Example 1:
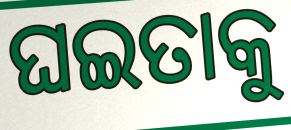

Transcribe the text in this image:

ଘଇତାକୁ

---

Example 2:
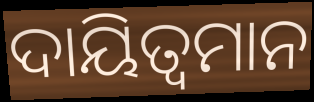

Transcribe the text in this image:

ଦାୟିତ୍ୱମାନ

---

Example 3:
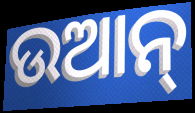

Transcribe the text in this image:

ଉଆନ୍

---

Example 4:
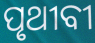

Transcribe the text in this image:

ପୃଥୀବୀ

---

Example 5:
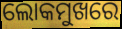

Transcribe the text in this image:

ଲୋକମୁଖରେ